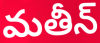
మతీన్